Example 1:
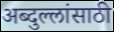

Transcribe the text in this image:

अब्दुल्लांसाठी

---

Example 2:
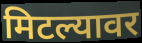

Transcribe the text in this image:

मिटल्यावर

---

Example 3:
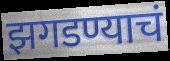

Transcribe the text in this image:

झगडण्याचं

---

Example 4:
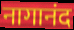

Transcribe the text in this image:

नागानंद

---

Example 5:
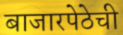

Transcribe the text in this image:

बाजारपेठेची